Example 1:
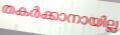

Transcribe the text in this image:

തകർക്കാനായില്ല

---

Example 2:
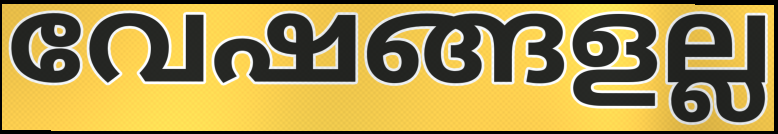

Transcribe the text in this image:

വേഷങ്ങളല്ല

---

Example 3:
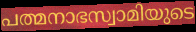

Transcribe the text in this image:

പത്മനാഭസ്വാമിയുടെ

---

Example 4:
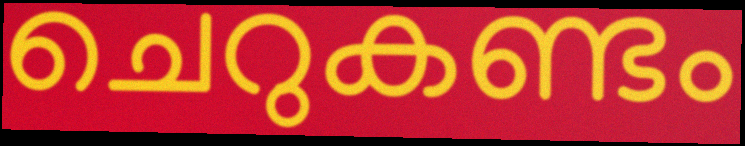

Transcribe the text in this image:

ചെറുകണ്ടം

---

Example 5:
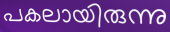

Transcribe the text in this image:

പകലായിരുന്നു